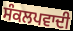
ਸੰਕਲਪਵਾਦੀ